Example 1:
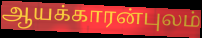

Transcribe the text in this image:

ஆயக்காரன்புலம்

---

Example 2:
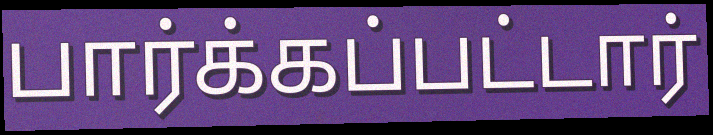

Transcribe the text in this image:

பார்க்கப்பட்டார்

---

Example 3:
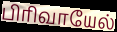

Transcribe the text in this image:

பிரிவாயேல்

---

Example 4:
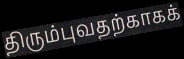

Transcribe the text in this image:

திரும்புவதற்காகக்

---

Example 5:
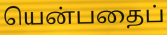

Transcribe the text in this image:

யென்பதைப்